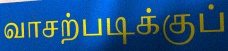
வாசற்படிக்குப்